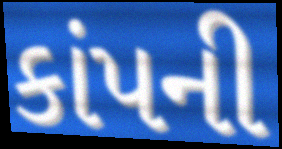
કાંપની